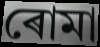
ৰোমা